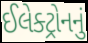
ઈલેક્ટ્રોનનું